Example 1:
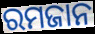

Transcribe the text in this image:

ରମଜାନ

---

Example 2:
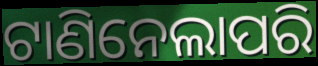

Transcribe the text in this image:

ଟାଣିନେଲାପରି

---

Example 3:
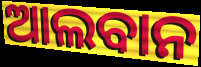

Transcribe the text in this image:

ଆଲବାନ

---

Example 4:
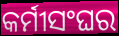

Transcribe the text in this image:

କର୍ମୀସଂଘର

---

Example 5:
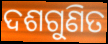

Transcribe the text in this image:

ଦଶଗୁଣିତ